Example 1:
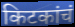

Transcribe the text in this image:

किटकांचं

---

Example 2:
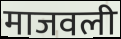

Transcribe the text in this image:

माजवली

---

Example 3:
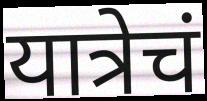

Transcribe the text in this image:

यात्रेचं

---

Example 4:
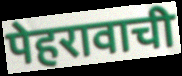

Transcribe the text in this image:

पेहरावाची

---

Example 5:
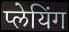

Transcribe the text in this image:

प्लेयिंग